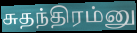
சுதந்திரம்னு